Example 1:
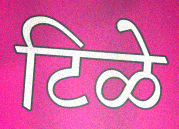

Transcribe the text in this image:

टिळे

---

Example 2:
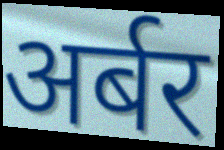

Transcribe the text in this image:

अर्बर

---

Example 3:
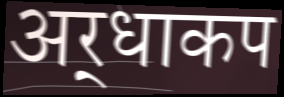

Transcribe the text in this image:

अर्धाकप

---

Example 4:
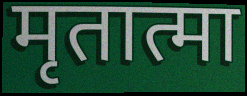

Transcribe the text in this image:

मृतात्मा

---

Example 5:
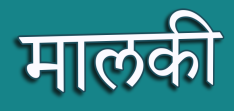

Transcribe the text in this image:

मालकी